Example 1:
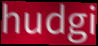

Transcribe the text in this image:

hudgi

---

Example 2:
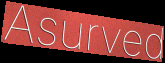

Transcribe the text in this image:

Asurved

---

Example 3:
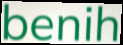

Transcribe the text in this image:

benih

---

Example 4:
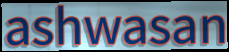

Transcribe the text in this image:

ashwasan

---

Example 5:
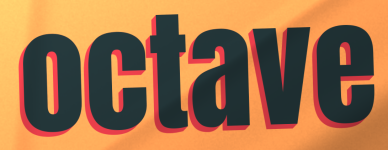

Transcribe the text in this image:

octave